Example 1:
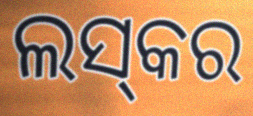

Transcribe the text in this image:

ଲସ୍‌କର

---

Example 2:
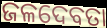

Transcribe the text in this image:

ଜଳଦେବତା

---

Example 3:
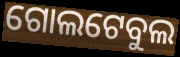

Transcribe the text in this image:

ଗୋଲଟେବୁଲ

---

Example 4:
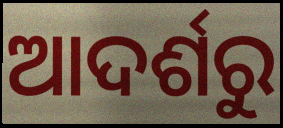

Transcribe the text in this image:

ଆଦର୍ଶରୁ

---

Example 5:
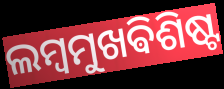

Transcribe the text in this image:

ଲମ୍ବମୁଖଵିଶିଷ୍ଟ